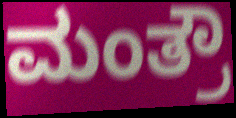
ಮಂತ್ರೌ